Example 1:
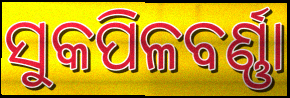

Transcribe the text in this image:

ସୁକପିଳବର୍ଣ୍ଣା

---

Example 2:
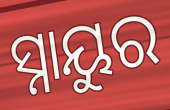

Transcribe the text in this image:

ସ୍ନାୟୁର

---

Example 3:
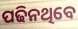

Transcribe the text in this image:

ପଢିନଥିବେ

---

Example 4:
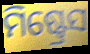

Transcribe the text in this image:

ମିଷ୍ଟ୍ରେସ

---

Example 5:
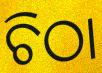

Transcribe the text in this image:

ଚିଠା